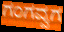
ಗಂಗವ್ವಗ